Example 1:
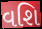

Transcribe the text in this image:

વશિ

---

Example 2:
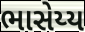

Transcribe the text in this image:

ભાસેય્ય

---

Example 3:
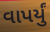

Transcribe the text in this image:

વાપર્યું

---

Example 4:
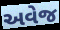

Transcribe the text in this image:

અવેજ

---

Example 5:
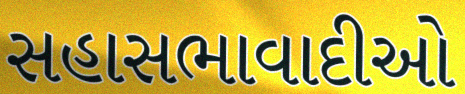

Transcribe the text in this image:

સહાસભાવાદીઓ